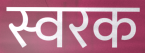
स्वरक